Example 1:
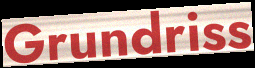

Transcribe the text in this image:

Grundriss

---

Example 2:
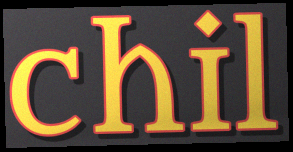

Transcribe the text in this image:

chil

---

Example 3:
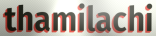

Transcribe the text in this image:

thamilachi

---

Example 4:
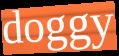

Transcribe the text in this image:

doggy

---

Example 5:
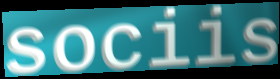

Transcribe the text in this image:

sociis